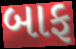
બાફ